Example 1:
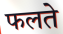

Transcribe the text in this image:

फलते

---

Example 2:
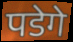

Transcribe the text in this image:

पडेगे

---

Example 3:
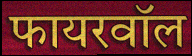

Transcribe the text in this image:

फायरवॉल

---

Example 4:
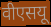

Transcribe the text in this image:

वीएसयू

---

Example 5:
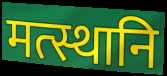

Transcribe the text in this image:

मत्स्थानि